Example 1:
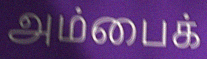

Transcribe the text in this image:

அம்பைக்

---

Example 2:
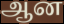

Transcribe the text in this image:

ஆன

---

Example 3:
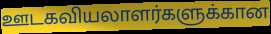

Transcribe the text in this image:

ஊடகவியலாளர்களுக்கான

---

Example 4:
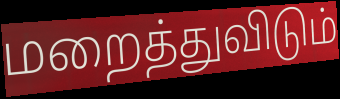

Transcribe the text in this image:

மறைத்துவிடும்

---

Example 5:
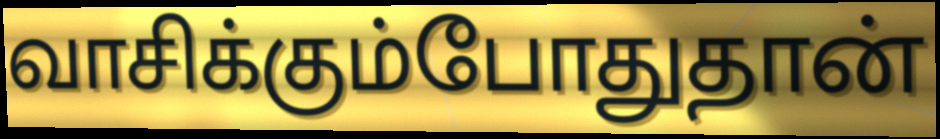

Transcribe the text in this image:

வாசிக்கும்போதுதான்